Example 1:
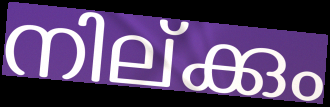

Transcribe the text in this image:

നില്ക്കും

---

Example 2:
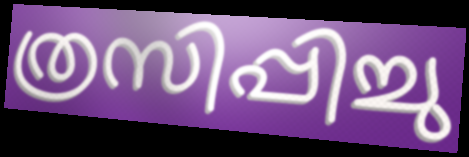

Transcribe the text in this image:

ത്രസിപ്പിച്ചു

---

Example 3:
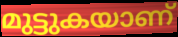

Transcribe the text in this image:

മുട്ടുകയാണ്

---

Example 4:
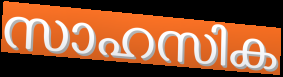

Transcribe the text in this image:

സാഹസിക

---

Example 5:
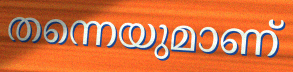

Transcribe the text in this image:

തന്നെയുമാണ്